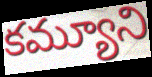
కమ్యూని